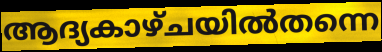
ആദ്യകാഴ്ചയിൽതന്നെ